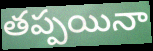
తప్పయినా